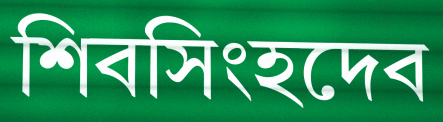
শিবসিংহদেব